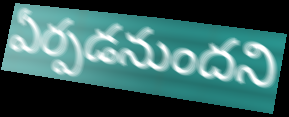
ఏర్పడనుందని